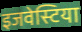
इजवेस्टिया